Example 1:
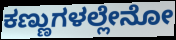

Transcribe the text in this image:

ಕಣ್ಣುಗಳಲ್ಲೇನೋ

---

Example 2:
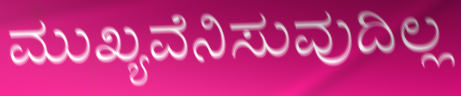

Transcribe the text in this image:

ಮುಖ್ಯವೆನಿಸುವುದಿಲ್ಲ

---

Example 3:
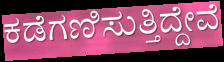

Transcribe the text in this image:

ಕಡೆಗಣಿಸುತ್ತಿದ್ದೇವೆ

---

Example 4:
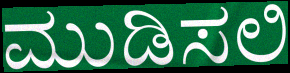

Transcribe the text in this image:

ಮುಡಿಸಲಿ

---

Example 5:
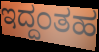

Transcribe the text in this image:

ಇದ್ದಂತಹ